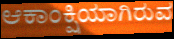
ಆಕಾಂಕ್ಷಿಯಾಗಿರುವ